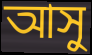
আসু